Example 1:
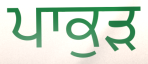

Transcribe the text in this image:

ਪਾਕੁੜ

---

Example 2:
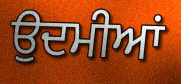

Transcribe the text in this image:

ਉਦਮੀਆਂ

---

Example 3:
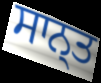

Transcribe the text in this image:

ਸਾਨ੍ਤ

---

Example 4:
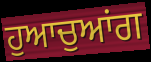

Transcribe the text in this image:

ਹੁਆਚੁਆਂਗ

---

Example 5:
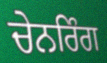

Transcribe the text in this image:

ਚੇਨਰਿੰਗ